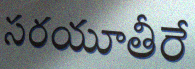
సరయూతీరే